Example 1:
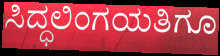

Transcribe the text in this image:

ಸಿದ್ಧಲಿಂಗಯತಿಗೂ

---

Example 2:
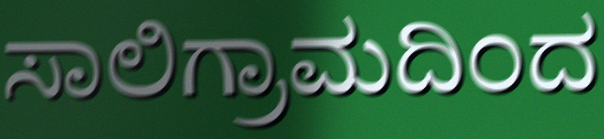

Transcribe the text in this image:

ಸಾಲಿಗ್ರಾಮದಿಂದ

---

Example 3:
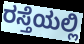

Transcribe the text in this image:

ರಸ್ತೆಯಲ್ಲಿ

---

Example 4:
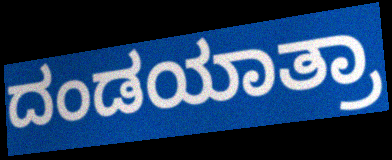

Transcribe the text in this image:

ದಂಡಯಾತ್ರಾ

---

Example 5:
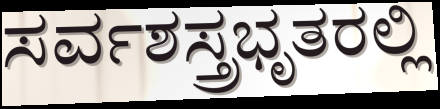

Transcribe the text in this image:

ಸರ್ವಶಸ್ತ್ರಭೃತರಲ್ಲಿ